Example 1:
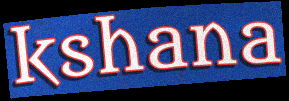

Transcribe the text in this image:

kshana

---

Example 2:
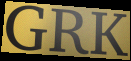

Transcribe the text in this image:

GRK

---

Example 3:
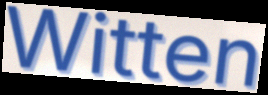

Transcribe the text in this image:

Witten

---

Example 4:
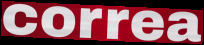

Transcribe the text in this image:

correa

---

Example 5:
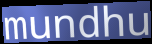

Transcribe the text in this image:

mundhu